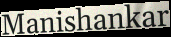
Manishankar